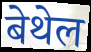
बेथेल